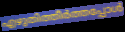
എഴുതിത്തീർത്തപ്പോൾ